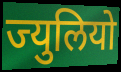
ज्युलियो